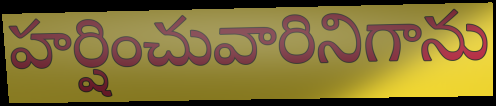
హర్షించువారినిగాను